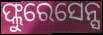
ଫ୍ଲୁରେସେନ୍ସ